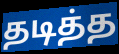
தடித்த